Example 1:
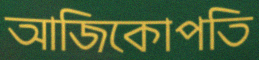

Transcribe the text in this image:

আজিকোপতি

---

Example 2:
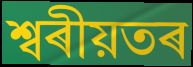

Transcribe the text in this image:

শ্বৰীয়তৰ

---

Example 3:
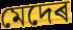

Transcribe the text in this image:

মেদেৰ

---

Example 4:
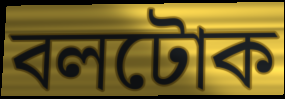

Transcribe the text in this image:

বলটোক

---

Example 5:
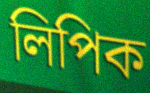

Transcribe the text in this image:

লিপিক